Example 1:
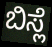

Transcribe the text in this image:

ಬಿಸ್ಲೆ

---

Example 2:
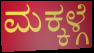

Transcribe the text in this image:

ಮಕ್ಕಳ್ಗೆ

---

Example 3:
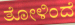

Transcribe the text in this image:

ತೋಳಿಂದೆ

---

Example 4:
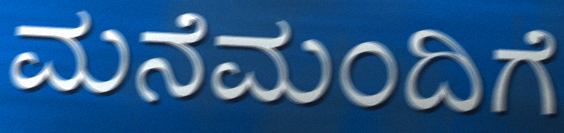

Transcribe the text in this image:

ಮನೆಮಂದಿಗೆ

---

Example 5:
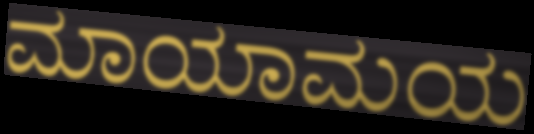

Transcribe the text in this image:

ಮಾಯಾಮಯ